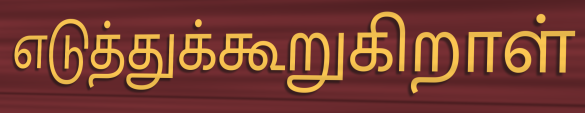
எடுத்துக்கூறுகிறாள்